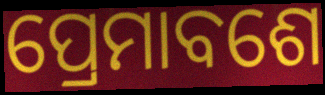
ପ୍ରେମାବଶେ